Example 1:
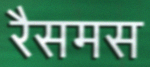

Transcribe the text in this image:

रैसमस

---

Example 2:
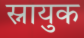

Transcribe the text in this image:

स्नायुक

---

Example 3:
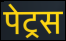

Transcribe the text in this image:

पेट्रस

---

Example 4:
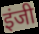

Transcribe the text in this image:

इंजी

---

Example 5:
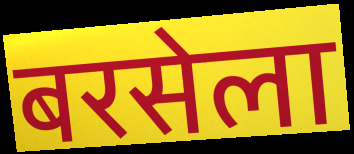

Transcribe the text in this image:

बरसेला